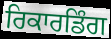
ਰਿਕਾਰਡਿੰਗ